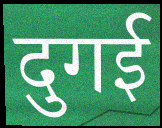
दुगई